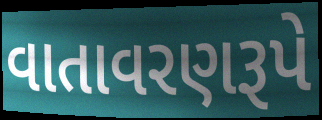
વાતાવરણરૂપે